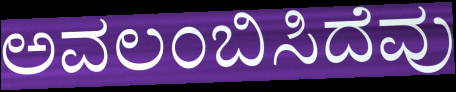
ಅವಲಂಬಿಸಿದೆವು